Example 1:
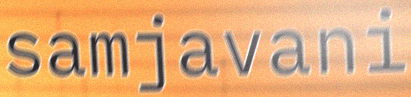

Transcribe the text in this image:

samjavani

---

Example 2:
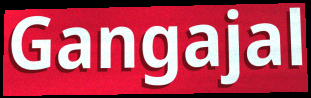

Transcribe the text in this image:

Gangajal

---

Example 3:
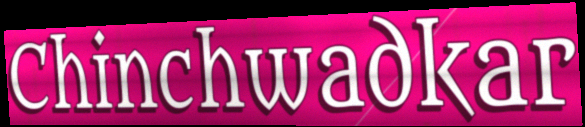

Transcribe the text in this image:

Chinchwadkar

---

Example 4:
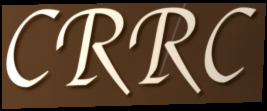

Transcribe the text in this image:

CRRC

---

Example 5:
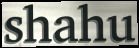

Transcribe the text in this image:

shahu